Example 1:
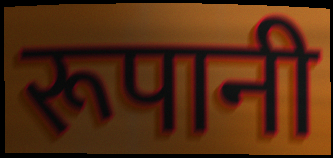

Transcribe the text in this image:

रूपानी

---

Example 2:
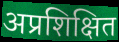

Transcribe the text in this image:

अप्रशिक्षित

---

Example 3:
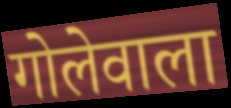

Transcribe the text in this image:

गोलेवाला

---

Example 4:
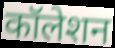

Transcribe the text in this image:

कॉलेशन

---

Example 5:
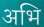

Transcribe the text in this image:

अभि